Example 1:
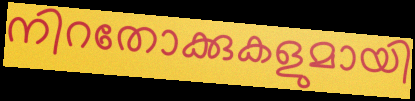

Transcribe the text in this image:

നിറതോക്കുകളുമായി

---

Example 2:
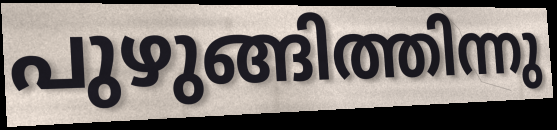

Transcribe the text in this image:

പുഴുങ്ങിത്തിന്നു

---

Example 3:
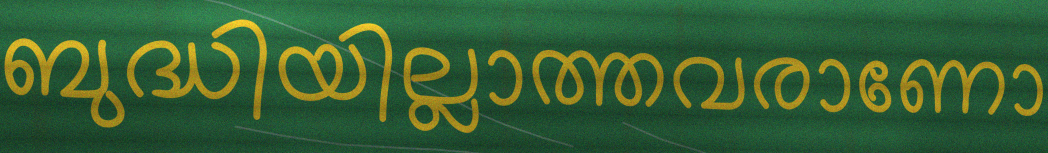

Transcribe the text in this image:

ബുദ്ധിയില്ലാത്തവരാണോ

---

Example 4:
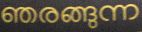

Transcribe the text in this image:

ഞരങ്ങുന്ന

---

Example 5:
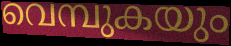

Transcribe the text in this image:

വെമ്പുകയും